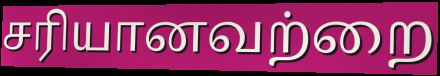
சரியானவற்றை